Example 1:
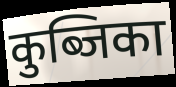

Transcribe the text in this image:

कुब्जिका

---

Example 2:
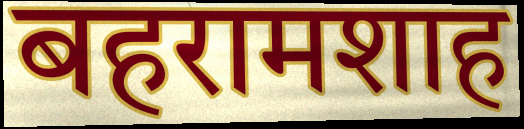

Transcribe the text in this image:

बहरामशाह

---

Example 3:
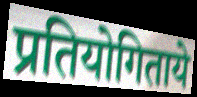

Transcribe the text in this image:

प्रतियोगिताये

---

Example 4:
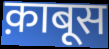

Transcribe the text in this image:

क़ाबूस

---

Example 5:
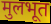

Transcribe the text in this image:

मुलभूत